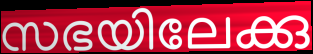
സഭയിലേക്കു